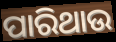
ପାରିଥାଉ